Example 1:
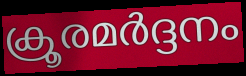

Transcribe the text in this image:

ക്രൂരമർദ്ദനം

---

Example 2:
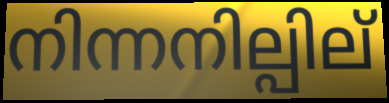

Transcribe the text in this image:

നിന്നനില്പില്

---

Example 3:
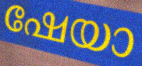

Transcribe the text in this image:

ഷേയാ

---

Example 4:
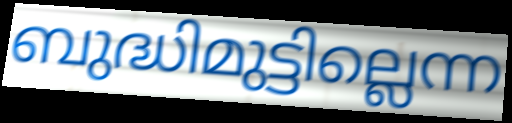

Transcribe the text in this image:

ബുദ്ധിമുട്ടില്ലെന്ന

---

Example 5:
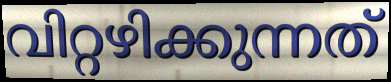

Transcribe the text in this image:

വിറ്റഴിക്കുന്നത്